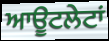
ਆਊਟਲੇਟਾਂ